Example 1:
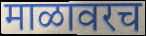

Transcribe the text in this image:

माळावरच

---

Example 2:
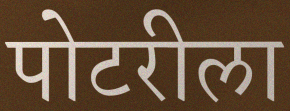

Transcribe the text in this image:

पोटरीला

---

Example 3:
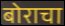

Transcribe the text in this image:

बोराचा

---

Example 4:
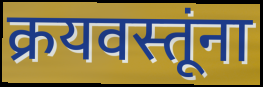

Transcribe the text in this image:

क्रयवस्तूंना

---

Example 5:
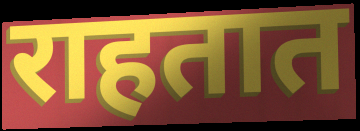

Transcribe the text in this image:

राहतात